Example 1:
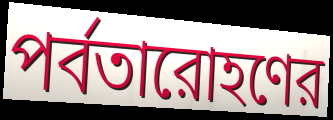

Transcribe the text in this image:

পর্বতারোহণের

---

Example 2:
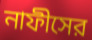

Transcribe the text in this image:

নাফীসের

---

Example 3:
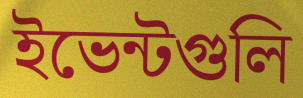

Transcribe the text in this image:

ইভেন্টগুলি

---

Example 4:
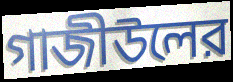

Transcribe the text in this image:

গাজীউলের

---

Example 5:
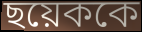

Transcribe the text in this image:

ছয়েককে